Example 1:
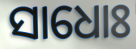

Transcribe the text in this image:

ସାଧୋଃ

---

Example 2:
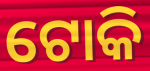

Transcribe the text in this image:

ଟୋକି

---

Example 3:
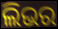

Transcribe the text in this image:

ଲିଭର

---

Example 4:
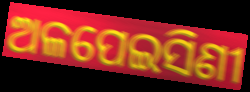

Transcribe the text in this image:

ଅଳପେଇସିଣୀ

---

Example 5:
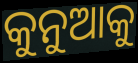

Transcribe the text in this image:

କୁନୁଆକୁ